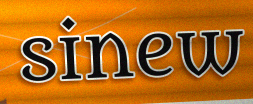
sinew